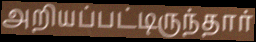
அறியப்பட்டிருந்தார்